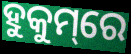
ହୁକୁମ୍‌ରେ